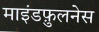
माइंडफ़ुलनेस